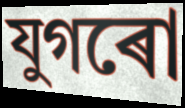
যুগৰো